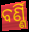
ବର୍ଣ୍ଣି